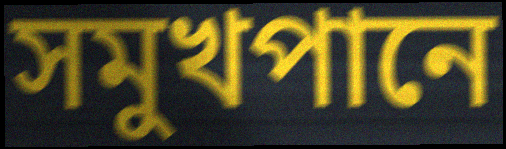
সমুখপানে